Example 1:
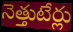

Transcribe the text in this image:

నెత్తుటేర్లు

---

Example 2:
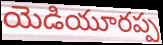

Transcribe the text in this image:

యెడియూరప్ప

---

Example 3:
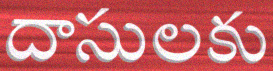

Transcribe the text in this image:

దాసులకు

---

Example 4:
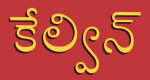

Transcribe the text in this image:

కేల్విన్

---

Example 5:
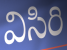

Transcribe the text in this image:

విసిరి